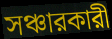
সঞ্চারকারী